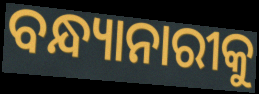
ବନ୍ଧ୍ୟାନାରୀକୁ